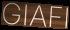
GIAFI